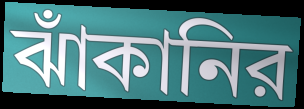
ঝাঁকানির